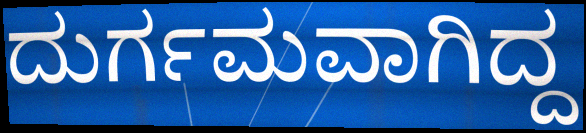
ದುರ್ಗಮವಾಗಿದ್ದ